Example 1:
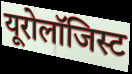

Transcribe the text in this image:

यूरोलॉजिस्ट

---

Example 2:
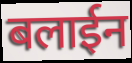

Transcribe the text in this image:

बलाईन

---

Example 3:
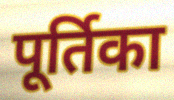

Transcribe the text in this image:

पूर्तिका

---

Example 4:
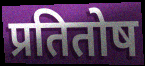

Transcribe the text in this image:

प्रतितोष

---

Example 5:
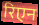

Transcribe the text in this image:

रिएन